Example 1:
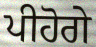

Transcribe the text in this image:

ਪੀਹੋਗੇ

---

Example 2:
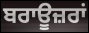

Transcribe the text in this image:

ਬਰਾਊਜ਼ਰਾਂ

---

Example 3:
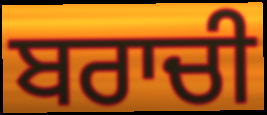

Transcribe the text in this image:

ਬਰਾਚੀ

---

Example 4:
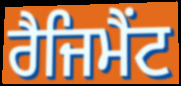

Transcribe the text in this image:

ਰੈਜਿਮੈਂਟ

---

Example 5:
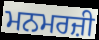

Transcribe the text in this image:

ਮਨਮਰਜ਼ੀ